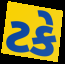
ટકે